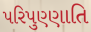
પરિપુણ્ણાતિ